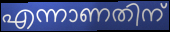
എന്നാണതിന്